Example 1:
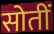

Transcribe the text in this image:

सोतीं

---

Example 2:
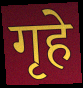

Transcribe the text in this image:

गृहे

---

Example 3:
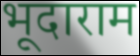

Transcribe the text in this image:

भूदाराम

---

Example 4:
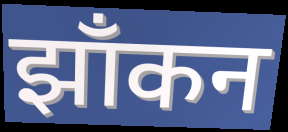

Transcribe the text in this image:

झाँकन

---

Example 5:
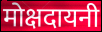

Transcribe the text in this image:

मोक्षदायनी